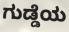
ಗುಡ್ಡೆಯ